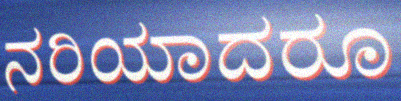
ನರಿಯಾದರೂ